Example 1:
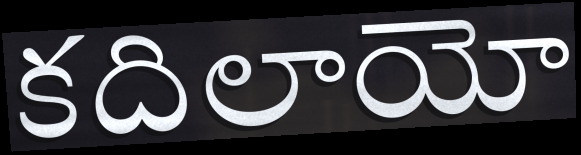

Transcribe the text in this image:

కదిలాయో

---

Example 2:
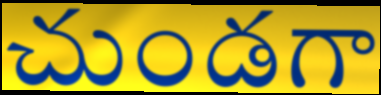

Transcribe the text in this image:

చుండగా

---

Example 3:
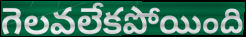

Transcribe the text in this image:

గెలవలేకపోయింది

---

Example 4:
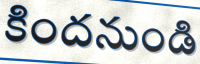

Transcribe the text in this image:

కిందనుండి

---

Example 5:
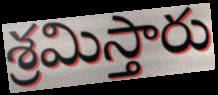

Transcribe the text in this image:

శ్రమిస్తారు